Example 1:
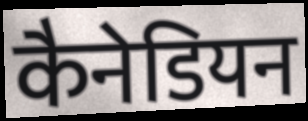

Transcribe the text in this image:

कैनेडियन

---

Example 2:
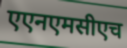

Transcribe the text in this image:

एएनएमसीएच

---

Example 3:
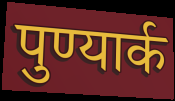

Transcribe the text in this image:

पुण्यार्क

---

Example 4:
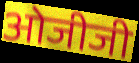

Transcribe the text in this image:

ओजीजी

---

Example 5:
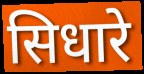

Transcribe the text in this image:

सिधारे